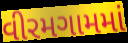
વીરમગામમાં